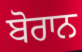
ਬੋਰਾਨ